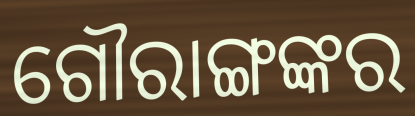
ଗୌରାଙ୍ଗଙ୍କର